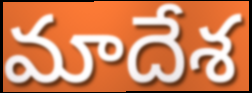
మాదేశ